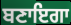
ਬਣਾਇਗਾ